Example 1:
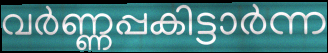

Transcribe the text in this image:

വർണ്ണപ്പകിട്ടാർന്ന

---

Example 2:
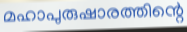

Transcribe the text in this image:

മഹാപുരുഷാരത്തിന്റെ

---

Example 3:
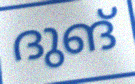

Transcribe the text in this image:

ദുങ്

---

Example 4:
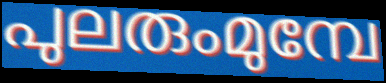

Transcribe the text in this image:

പുലരുംമുമ്പേ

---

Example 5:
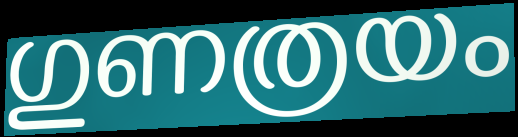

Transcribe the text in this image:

ഗുണത്രയം